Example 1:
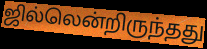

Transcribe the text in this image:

ஜில்லென்றிருந்தது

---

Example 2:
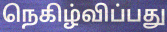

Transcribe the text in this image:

நெகிழ்விப்பது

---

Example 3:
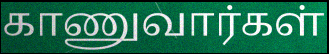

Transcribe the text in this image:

காணுவார்கள்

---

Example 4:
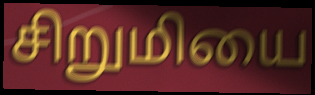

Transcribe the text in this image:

சிறுமியை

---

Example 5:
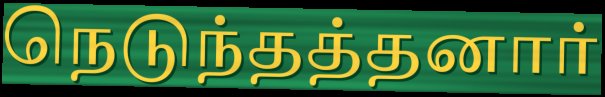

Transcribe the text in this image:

நெடுந்தத்தனார்